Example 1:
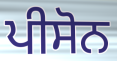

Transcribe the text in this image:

ਪੀਸੋਨ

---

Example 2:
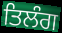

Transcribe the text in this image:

ਤਿਲੰਗ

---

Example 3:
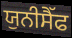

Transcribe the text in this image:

ਯੁਨੀਸੈੱਫ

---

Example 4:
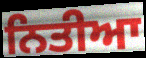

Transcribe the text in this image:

ਨਿਤੀਆ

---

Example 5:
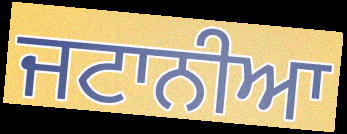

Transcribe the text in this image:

ਜਟਾਨੀਆ